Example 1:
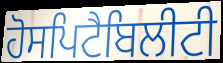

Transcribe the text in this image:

ਹੋਸਪਿਟੈਬਿਲੀਟੀ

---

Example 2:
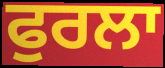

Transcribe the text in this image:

ਫੁਰਲਾ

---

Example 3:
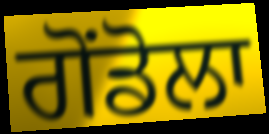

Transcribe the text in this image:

ਗੋਂਡੋਲਾ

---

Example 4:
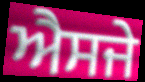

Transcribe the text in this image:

ਐਸਜੇ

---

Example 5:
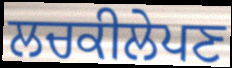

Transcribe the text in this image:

ਲਚਕੀਲੇਪਣ